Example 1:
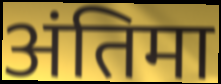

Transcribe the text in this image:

अंतिमा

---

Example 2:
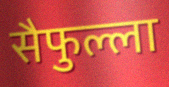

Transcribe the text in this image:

सैफुल्ला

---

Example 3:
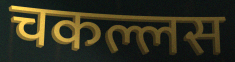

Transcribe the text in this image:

चकल्लस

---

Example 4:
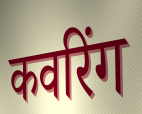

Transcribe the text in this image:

कवरिंग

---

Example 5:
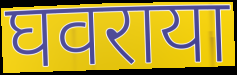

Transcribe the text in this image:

घवराया